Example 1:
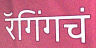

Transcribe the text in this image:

रॅगिंगचं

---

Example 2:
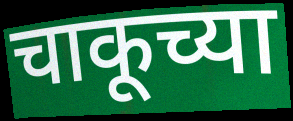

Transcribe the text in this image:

चाकूच्या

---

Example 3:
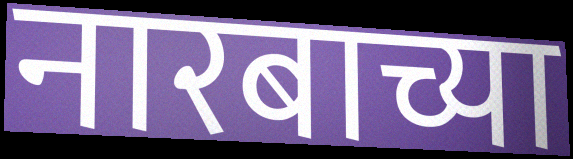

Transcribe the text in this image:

नारबाच्या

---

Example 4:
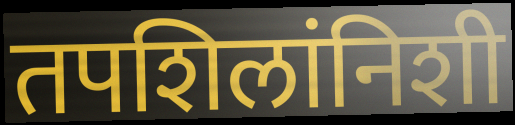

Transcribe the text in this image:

तपशिलांनिशी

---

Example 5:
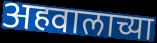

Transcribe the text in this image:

अहवालाच्या